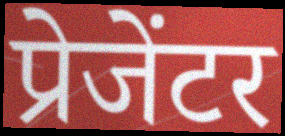
प्रेजेंटर